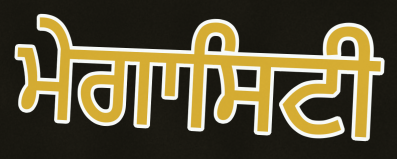
ਮੇਗਾਸਿਟੀ